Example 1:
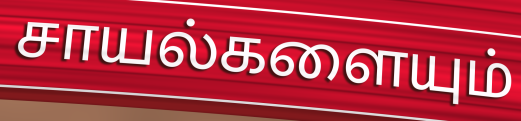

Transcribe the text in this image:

சாயல்களையும்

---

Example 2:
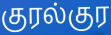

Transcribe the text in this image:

குரல்குர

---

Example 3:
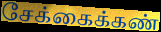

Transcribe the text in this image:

சேக்கைக்கண்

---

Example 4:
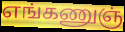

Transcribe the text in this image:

எங்கணுஞ்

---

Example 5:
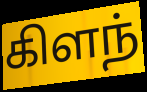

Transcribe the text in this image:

கிளந்